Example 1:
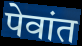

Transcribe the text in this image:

पेवांत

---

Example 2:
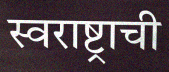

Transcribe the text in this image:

स्वराष्ट्राची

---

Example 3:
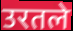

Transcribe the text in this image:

उरतले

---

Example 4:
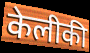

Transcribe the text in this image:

केलीकी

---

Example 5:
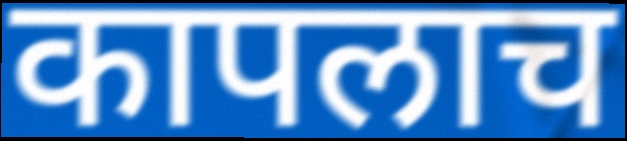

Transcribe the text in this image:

कापलाच